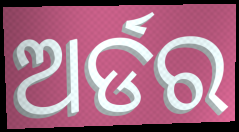
ଅର୍ଡର